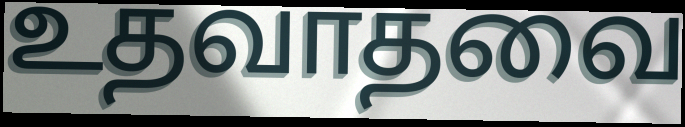
உதவாதவை